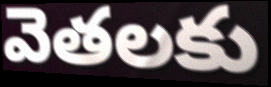
వెతలకు